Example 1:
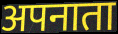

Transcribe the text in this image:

अपनाता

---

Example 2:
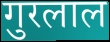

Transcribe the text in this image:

गुरलाल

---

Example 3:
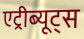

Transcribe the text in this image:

एट्रीब्यूट्स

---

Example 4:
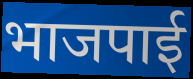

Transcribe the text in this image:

भाजपाई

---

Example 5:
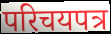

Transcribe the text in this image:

परिचयपत्र